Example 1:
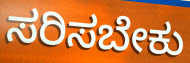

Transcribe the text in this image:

ಸರಿಸಬೇಕು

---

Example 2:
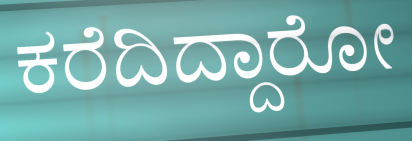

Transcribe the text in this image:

ಕರೆದಿದ್ದಾರೋ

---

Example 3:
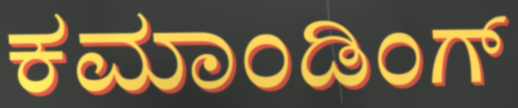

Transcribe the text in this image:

ಕಮಾಂಡಿಂಗ್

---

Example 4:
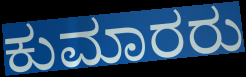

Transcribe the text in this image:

ಕುಮಾರರು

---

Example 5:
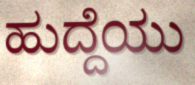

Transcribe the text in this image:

ಹುದ್ದೆಯು